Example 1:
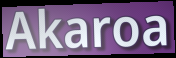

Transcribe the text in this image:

Akaroa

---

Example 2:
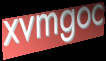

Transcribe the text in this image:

xvmgoc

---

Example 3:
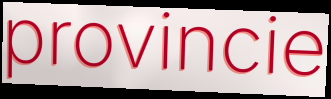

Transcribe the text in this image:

provincie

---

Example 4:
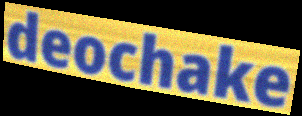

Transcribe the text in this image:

deochake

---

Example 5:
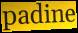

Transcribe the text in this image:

padine